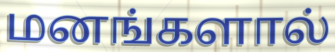
மனங்களால்